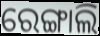
ରେଙ୍ଗାଲି